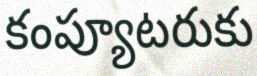
కంప్యూటరుకు